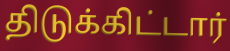
திடுக்கிட்டார்